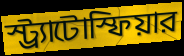
স্ট্র্যাটোস্ফিয়ার